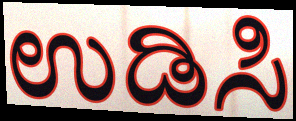
ಉಡಿಸಿ